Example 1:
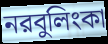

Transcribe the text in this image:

নরবুলিংকা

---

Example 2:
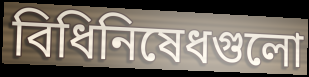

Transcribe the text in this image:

বিধিনিষেধগুলো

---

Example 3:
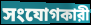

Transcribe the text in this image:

সংযোগকারী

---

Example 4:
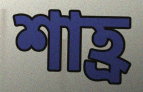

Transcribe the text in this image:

শাহ্র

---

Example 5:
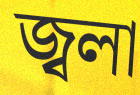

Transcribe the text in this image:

জ্বলা